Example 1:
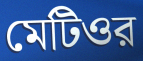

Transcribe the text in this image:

মেটিওর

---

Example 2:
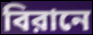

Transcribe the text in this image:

বিরানে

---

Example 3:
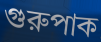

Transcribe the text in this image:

গুরুপাক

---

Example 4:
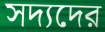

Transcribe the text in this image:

সদ্যদের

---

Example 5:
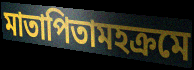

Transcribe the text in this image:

মাতাপিতামহক্রমে